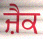
ਜ਼ੈਕ